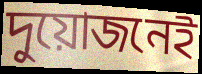
দুয়োজনেই